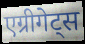
एग्रीगेट्स